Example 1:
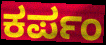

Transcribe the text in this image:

ಕರ್ಪಂ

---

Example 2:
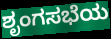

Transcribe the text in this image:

ಶೃಂಗಸಭೆಯ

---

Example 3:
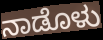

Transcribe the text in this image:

ನಾಡೊಳು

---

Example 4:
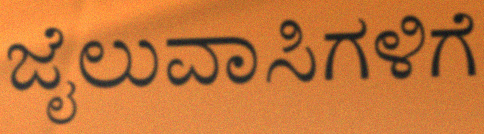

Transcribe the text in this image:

ಜೈಲುವಾಸಿಗಳಿಗೆ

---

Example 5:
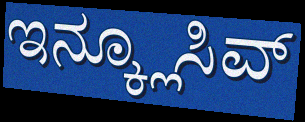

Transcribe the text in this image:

ಇನ್ಕ್ಲೂಸಿವ್